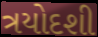
ત્રયોદશી